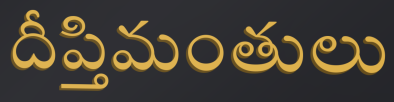
దీప్తిమంతులు